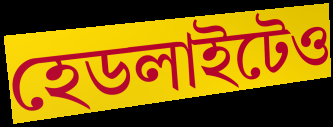
হেডলাইটেও